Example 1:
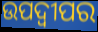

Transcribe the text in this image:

ଉପଦ୍ୱୀପର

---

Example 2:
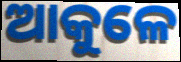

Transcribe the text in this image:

ଆକୁଳେ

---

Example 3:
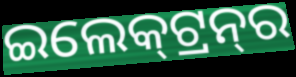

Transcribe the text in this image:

ଇଲେକ୍‍ଟ୍ରନ୍‍ର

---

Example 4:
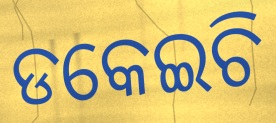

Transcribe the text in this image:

ଡକେଇଚି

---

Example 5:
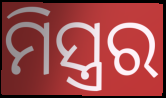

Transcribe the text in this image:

ମିସ୍ତ୍ରର